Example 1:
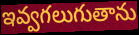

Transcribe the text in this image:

ఇవ్వగలుగుతాను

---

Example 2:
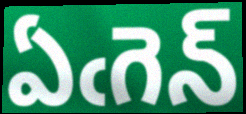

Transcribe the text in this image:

ఏఁగెన్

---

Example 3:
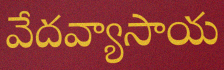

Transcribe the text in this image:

వేదవ్యాసాయ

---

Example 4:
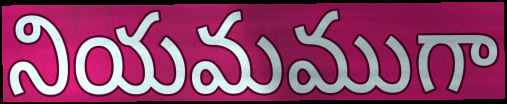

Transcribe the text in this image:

నియమముగా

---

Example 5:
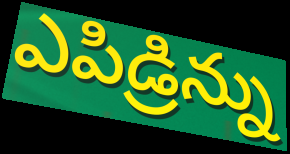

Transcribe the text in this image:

ఎపిడ్రిన్ను